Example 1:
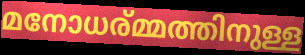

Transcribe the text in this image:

മനോധര്മ്മത്തിനുള്ള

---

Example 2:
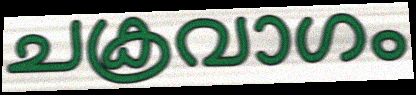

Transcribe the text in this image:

ചക്രവാഗം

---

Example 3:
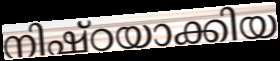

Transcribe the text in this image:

നിഷ്ഠയാക്കിയ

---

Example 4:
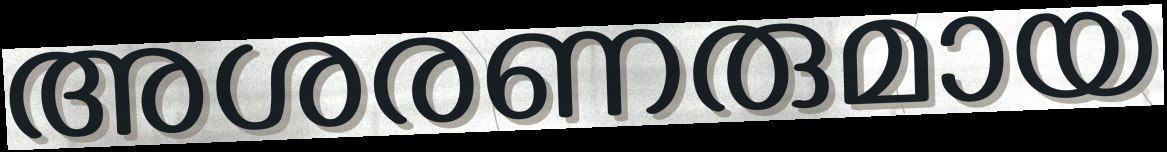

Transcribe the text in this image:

അശരണരുമായ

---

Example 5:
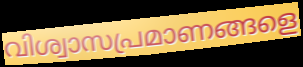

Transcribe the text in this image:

വിശ്വാസപ്രമാണങ്ങളെ